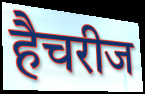
हैचरीज